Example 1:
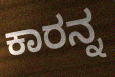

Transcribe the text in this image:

ಕಾರನ್ನ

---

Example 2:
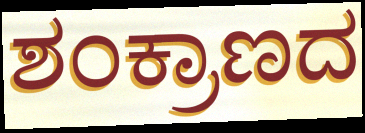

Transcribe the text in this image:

ಶಂಕ್ರಾಣದ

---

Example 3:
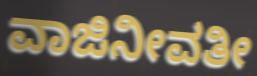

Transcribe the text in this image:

ವಾಜಿನೀವತೀ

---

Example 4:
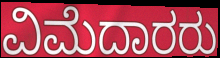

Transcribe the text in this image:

ವಿಮೆದಾರರು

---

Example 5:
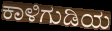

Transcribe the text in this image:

ಕಾಳಿಗುಡಿಯ